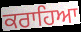
ਕਰਾਹਿਆ